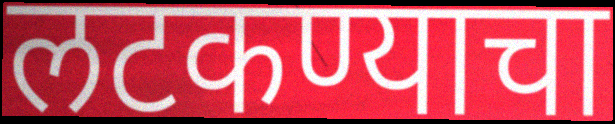
लटकण्याचा